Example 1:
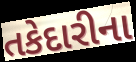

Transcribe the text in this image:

તકેદારીના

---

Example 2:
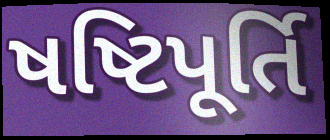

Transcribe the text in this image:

ષષ્ટિપૂર્તિ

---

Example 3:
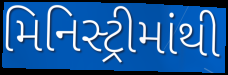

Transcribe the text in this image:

મિનિસ્ટ્રીમાંથી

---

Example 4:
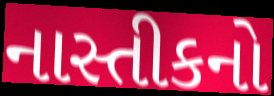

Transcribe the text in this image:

નાસ્તીકનો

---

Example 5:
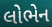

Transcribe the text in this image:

લોભેન